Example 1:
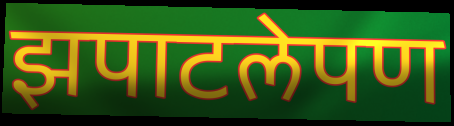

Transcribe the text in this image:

झपाटलेपण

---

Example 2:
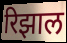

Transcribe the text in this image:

रिझाल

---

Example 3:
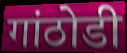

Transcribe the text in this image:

गांठोडी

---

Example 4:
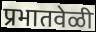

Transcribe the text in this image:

प्रभातवेळी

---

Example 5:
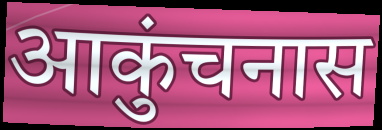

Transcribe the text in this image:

आकुंचनास